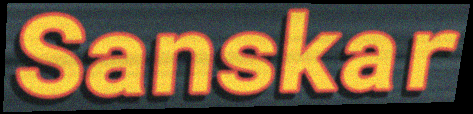
Sanskar